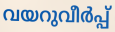
വയറുവീർപ്പ്